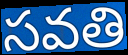
సవతి